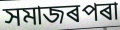
সমাজৰপৰা